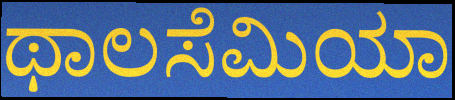
ಥಾಲಸೆಮಿಯಾ